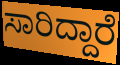
ಸಾರಿದ್ದಾರೆ